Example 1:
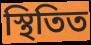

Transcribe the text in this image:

স্থিতিত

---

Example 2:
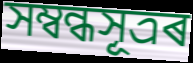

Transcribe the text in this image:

সম্বন্ধসূত্ৰৰ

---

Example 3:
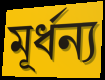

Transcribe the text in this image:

মূৰ্ধন্য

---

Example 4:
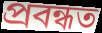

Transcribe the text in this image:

প্ৰবন্ধত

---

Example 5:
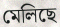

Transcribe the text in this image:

মেলিছে